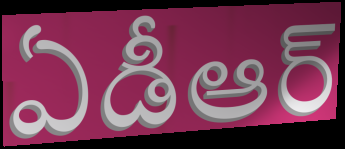
ఏడీఆర్